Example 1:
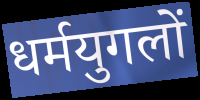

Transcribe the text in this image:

धर्मयुगलों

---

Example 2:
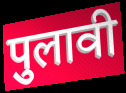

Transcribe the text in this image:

पुलावी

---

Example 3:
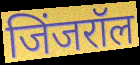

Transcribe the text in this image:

जिंजरॉल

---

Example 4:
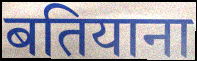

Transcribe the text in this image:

बतियाना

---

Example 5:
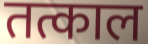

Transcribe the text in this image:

तत्काल